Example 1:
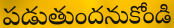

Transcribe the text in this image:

పడుతుందనుకోండి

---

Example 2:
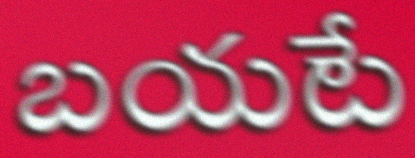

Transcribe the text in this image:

బయటే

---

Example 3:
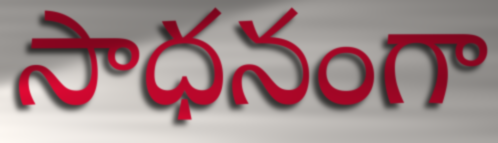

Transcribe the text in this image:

సాధనంగా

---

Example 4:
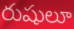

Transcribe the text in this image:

రుషులూ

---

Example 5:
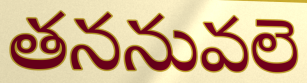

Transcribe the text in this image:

తననువలె